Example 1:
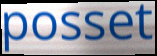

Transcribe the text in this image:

posset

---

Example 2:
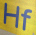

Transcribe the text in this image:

Hf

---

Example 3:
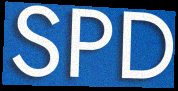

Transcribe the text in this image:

SPD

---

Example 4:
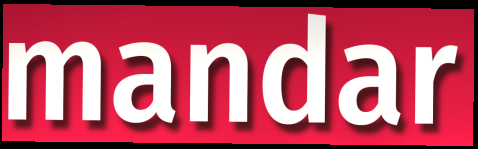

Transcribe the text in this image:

mandar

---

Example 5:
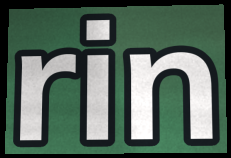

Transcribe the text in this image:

rin